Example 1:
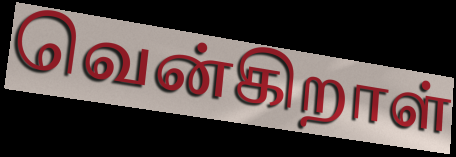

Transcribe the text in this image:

வென்கிறாள்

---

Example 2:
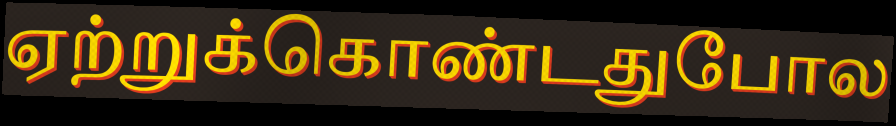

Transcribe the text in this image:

ஏற்றுக்கொண்டதுபோல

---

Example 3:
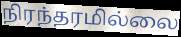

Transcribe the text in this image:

நிரந்தரமில்லை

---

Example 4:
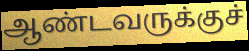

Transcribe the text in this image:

ஆண்டவருக்குச்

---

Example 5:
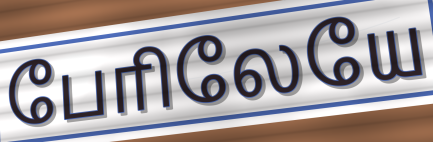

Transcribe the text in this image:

பேரிலேயே